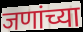
जणांच्या